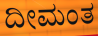
ದೀಮಂತ